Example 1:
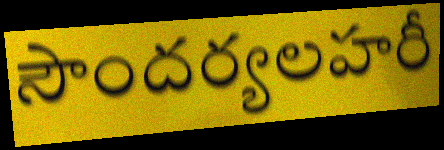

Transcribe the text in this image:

సౌందర్యలహరీ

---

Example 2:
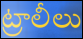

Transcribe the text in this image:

ట్రాలీలు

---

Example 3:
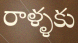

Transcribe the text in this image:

రాళ్ళకు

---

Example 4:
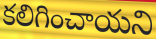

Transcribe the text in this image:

కలిగించాయని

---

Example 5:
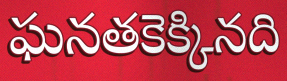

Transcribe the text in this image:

ఘనతకెక్కినది